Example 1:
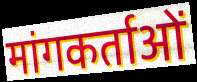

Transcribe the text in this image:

मांगकर्ताओं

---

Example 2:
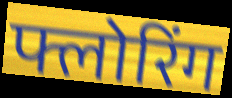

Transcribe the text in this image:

फ्लोरिंग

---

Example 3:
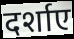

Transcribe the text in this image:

दर्शाए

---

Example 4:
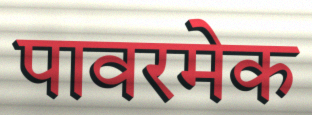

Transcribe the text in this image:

पावरमेक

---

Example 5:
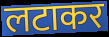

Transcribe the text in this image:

लटाकर